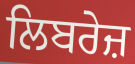
ਲਿਬਰੇਜ਼